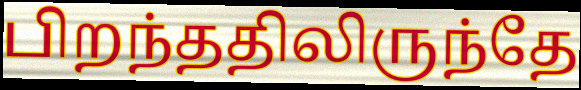
பிறந்ததிலிருந்தே